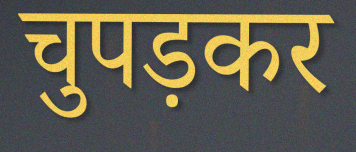
चुपड़कर